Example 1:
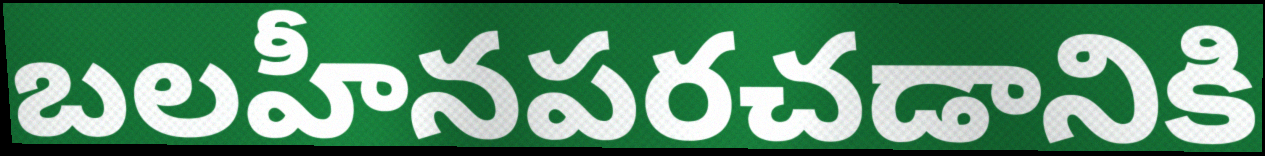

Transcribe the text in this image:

బలహీనపరచడానికి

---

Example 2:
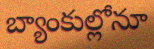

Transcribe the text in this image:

బ్యాంకుల్లోనూ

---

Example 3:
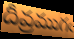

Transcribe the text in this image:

దీవ్రముగఁ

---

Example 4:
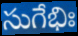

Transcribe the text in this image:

సుగేభిః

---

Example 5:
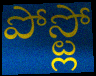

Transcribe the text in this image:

పోస్ట్లో